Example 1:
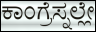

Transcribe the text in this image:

ಕಾಂಗ್ರೆಸ್ನಲ್ಲೇ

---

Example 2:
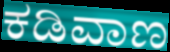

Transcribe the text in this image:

ಕಡಿವಾಣ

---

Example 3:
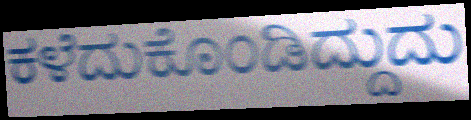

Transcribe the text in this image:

ಕಳೆದುಕೊಂಡಿದ್ದುದು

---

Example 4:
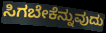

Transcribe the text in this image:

ಸಿಗಬೇಕೆನ್ನುವುದು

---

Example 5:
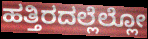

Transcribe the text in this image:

ಹತ್ತಿರದಲ್ಲೆಲ್ಲೋ